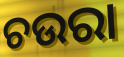
ଚଉରା